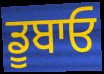
ਡੂਬਾਓ